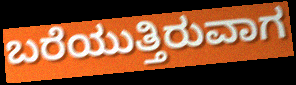
ಬರೆಯುತ್ತಿರುವಾಗ